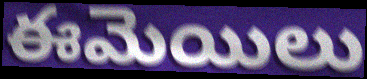
ఈమెయిలు